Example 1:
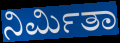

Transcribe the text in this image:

ನಿರ್ಮಿತಾ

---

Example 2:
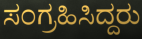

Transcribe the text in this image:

ಸಂಗ್ರಹಿಸಿದ್ದರು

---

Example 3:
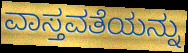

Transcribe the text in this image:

ವಾಸ್ತವತೆಯನ್ನು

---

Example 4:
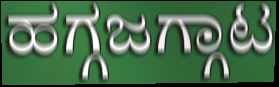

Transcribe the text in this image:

ಹಗ್ಗಜಗ್ಗಾಟ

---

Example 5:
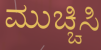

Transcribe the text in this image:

ಮುಚ್ಚಿಸಿ